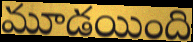
మూడయింది